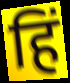
हिं